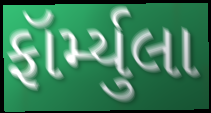
ફૉર્મ્યુલા